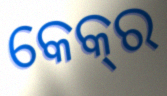
କେକ୍‌ର